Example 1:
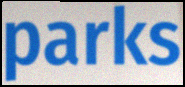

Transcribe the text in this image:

parks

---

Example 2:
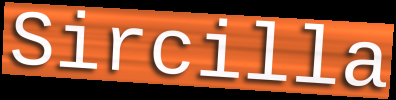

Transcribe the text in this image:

Sircilla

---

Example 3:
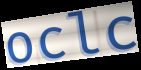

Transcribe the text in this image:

oclc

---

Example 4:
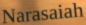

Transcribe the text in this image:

Narasaiah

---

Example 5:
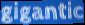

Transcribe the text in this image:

gigantic